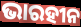
ଭାରହୀନ